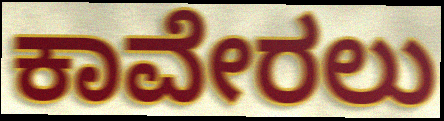
ಕಾವೇರಲು